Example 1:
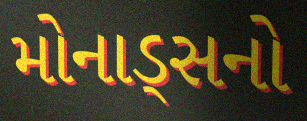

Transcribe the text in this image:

મોનાડ્સનો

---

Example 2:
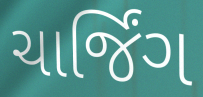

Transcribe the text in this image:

ચાર્જિંગ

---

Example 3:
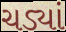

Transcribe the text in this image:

ચડ્યાં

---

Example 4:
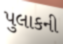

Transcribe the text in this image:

પુલાકની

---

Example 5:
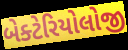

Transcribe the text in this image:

બેક્ટેરિયોલોજી